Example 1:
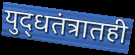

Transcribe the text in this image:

युद्धतंत्रातही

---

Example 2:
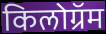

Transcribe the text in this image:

किलोग्रॅम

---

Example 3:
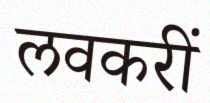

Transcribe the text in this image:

लवकरीं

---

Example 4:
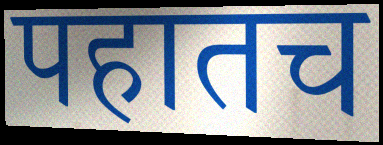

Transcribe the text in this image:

पहातच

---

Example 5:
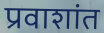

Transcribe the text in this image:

प्रवाशांत